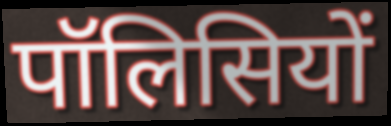
पॉलिसियों